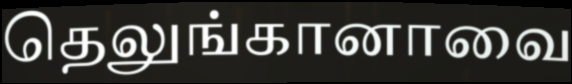
தெலுங்கானாவை